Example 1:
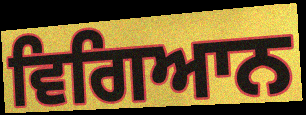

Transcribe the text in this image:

ਵਿਗਿਆਨ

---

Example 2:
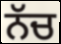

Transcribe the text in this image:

ਨੱਚ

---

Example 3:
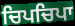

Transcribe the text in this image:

ਚਿਪਚਿਪਾ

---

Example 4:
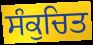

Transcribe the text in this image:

ਸੰਕੁਚਿਤ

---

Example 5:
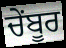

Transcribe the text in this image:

ਚੇਂਬੂਰ